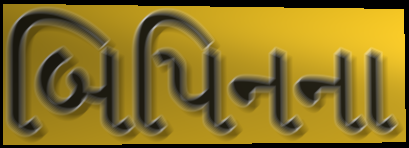
બિપિનના